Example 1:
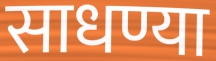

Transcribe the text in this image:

साधण्या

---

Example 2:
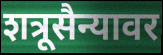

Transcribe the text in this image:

शत्रूसैन्यावर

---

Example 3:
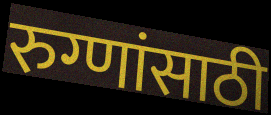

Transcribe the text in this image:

रुग्णांसाठी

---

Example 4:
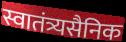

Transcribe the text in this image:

स्वातंत्र्यसैनिक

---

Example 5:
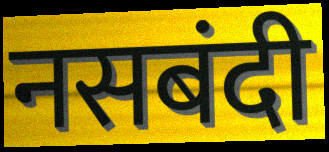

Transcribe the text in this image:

नसबंदी